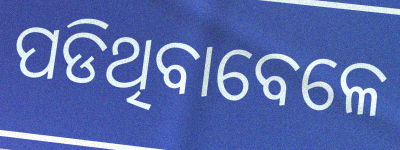
ପଡିଥିବାବେଳେ